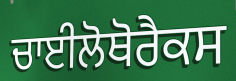
ਚਾਈਲੋਥੋਰੈਕਸ